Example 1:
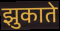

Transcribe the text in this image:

झुकाते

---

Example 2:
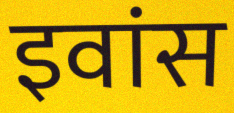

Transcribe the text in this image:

इवांस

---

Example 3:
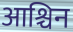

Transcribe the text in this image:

आश्चिन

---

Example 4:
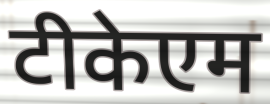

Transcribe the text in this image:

टीकेएम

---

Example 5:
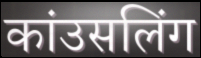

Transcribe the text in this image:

कांउसलिंग